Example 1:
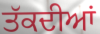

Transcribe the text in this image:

ਤੱਕਦੀਆਂ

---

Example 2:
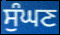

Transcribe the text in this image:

ਸੁੰਘਣ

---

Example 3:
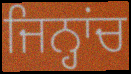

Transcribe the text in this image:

ਜਿਨ੍ਹਾਂਚ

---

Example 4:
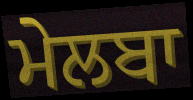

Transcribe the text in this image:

ਮੇਲਬਾ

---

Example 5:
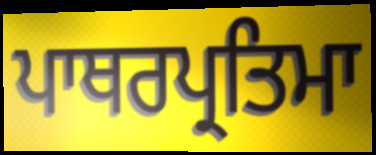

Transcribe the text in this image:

ਪਾਥਰਪ੍ਰਤਿਮਾ